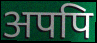
अपपि